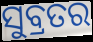
ସୁବ୍ରତର